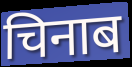
चिनाब